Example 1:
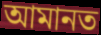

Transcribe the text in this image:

আমানত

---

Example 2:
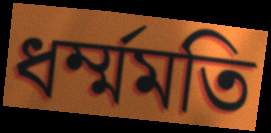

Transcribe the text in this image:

ধর্ম্মমতি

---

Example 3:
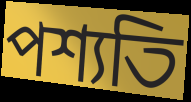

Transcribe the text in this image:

পশ্যতি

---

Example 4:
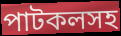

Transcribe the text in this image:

পাটকলসহ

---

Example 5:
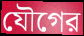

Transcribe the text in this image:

যৌগের